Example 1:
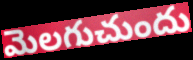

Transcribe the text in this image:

మెలగుచుందు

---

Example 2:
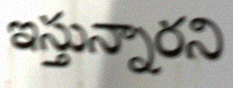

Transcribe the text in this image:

ఇస్తున్నారని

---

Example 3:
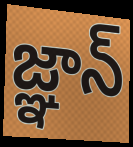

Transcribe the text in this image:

జ్ఞాన్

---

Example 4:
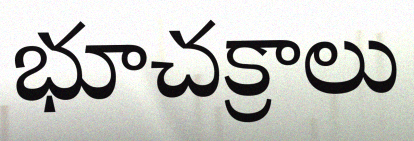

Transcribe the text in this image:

భూచక్రాలు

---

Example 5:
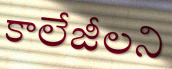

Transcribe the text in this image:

కాలేజీలని